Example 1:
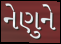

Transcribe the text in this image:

નેણુને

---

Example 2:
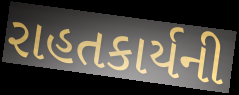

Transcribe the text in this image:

રાહતકાર્યની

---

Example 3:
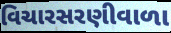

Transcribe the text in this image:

વિચારસરણીવાળા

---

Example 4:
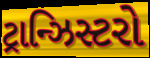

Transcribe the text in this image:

ટ્રાન્ઝિસ્ટરો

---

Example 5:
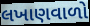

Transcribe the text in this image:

લખાણવાળો